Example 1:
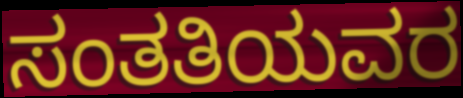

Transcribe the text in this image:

ಸಂತತಿಯವರ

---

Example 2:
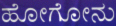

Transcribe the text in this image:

ಹೋಗೋನು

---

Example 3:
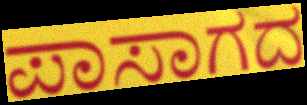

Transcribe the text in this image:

ಪಾಸಾಗದ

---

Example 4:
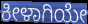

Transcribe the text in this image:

ಕೀಳಾಗಿಯೇ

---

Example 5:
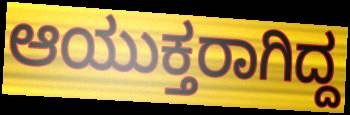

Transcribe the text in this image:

ಆಯುಕ್ತರಾಗಿದ್ದ